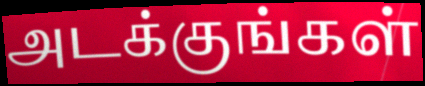
அடக்குங்கள்